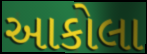
આકોલા